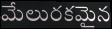
మేలురకమైన